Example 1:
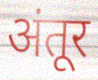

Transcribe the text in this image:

अंतूर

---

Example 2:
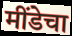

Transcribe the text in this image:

मींडेचा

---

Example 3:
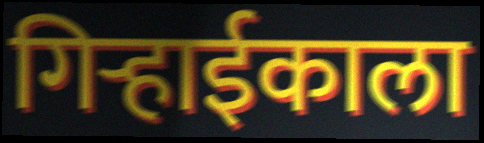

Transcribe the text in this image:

गिर्‍हाईकाला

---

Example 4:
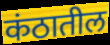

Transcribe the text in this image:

कंठातील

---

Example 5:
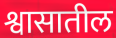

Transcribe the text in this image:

श्वासातील